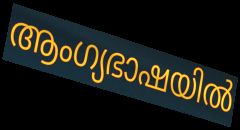
ആംഗ്യഭാഷയിൽ